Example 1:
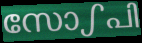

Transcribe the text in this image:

സോഽപി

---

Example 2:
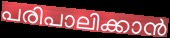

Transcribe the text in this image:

പരിപാലിക്കാൻ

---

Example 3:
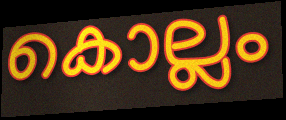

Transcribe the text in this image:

കൊല്ലം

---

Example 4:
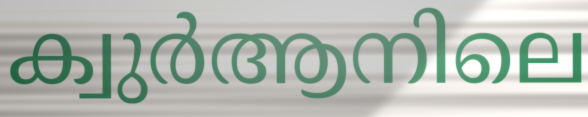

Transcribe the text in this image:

ക്വുർആനിലെ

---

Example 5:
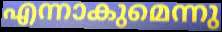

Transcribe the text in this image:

എന്നാകുമെന്നു